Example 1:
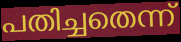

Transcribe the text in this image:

പതിച്ചതെന്ന്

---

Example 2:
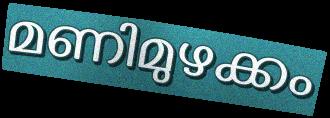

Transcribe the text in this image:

മണിമുഴക്കം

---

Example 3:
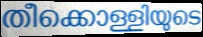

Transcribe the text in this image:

തീക്കൊള്ളിയുടെ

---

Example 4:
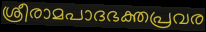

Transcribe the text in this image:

ശ്രീരാമപാദഭക്തപ്രവര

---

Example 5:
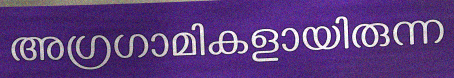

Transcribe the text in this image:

അഗ്രഗാമികളായിരുന്ന